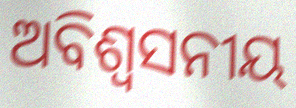
ଅବିଶ୍ବସନୀୟ